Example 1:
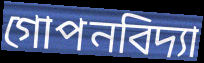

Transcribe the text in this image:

গোপনবিদ্যা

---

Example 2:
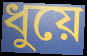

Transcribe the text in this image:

ধুয়ে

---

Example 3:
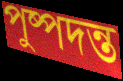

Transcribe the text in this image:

পুষ্পদন্ত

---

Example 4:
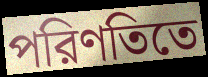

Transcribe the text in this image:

পরিণতিতে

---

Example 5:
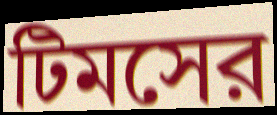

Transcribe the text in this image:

টিমসের